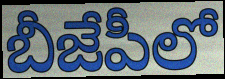
బీజేపీలో